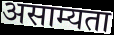
असाम्यता